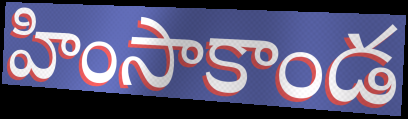
హింసాకాండ